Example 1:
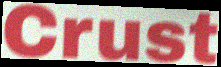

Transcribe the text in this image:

Crust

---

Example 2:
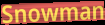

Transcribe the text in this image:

Snowman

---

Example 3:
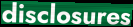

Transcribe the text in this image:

disclosures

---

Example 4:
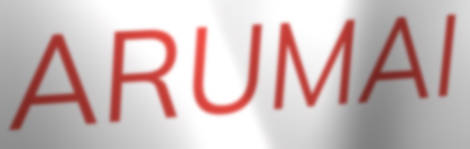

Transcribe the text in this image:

ARUMAI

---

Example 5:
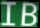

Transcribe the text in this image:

IB